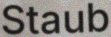
Staub